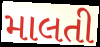
માલતી